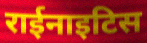
राईनाइटिस